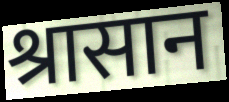
श्रासान